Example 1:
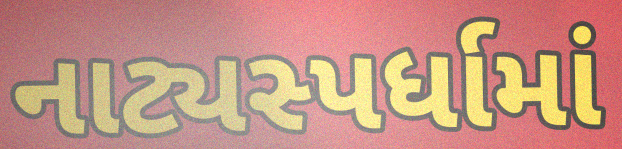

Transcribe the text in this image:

નાટ્યસ્પર્ધામાં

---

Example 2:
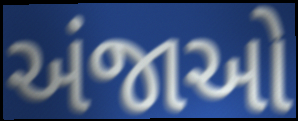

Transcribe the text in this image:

અંજાઓ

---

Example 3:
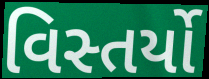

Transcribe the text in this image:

વિસ્તર્યો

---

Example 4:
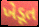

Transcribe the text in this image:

ખેડૂત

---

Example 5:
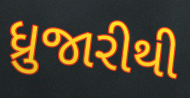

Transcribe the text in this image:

ધ્રુજારીથી